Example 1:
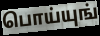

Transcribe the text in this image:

பொய்யுங்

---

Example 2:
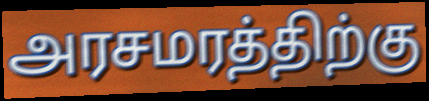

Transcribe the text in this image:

அரசமரத்திற்கு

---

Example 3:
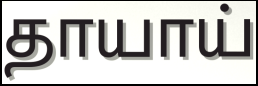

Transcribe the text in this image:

தாயாய்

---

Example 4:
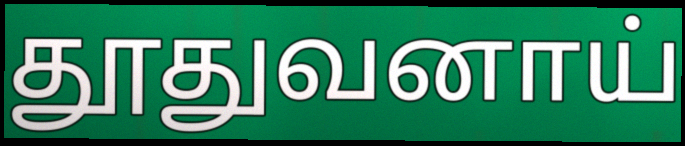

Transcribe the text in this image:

தூதுவனாய்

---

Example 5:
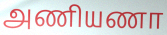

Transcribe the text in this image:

அணியணா